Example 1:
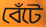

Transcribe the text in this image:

বেঁটে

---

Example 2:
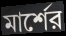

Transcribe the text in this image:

মার্শের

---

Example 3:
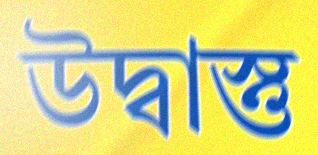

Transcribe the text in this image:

উদ্বাস্তু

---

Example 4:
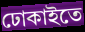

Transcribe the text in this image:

ঢোকাইতে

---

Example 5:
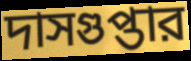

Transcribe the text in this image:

দাসগুপ্তার